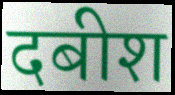
दबीश